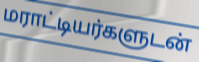
மராட்டியர்களுடன்